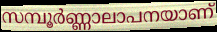
സമ്പൂർണ്ണാലാപനയാണ്